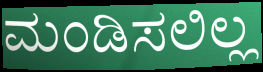
ಮಂಡಿಸಲಿಲ್ಲ